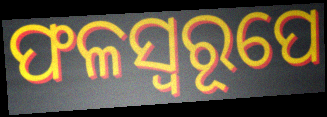
ଫଳସ୍ୱରୂପେ